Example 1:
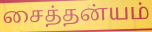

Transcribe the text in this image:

சைத்தன்யம்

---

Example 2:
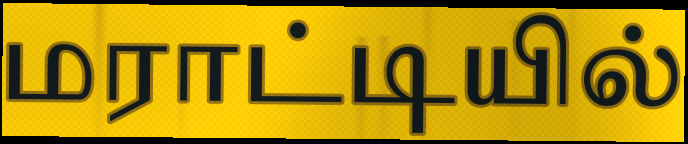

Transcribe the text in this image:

மராட்டியில்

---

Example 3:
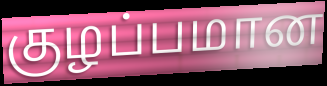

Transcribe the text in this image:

குழப்பமான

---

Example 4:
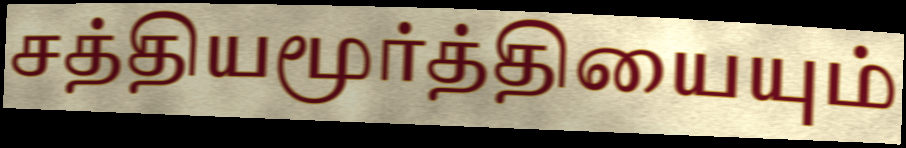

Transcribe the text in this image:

சத்தியமூர்த்தியையும்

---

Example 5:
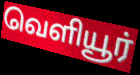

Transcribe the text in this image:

வெளியூர்